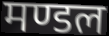
मण्डल